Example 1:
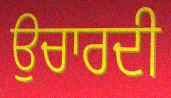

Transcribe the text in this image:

ਉਚਾਰਦੀ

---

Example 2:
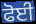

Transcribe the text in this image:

ਫੋਈ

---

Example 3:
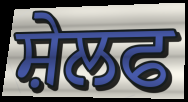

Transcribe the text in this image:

ਸ਼ੇਲਫ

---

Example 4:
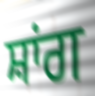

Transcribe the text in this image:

ਸ਼ਾਂਗ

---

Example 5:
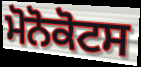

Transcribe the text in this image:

ਮੋਨੋਕੋਟਸ